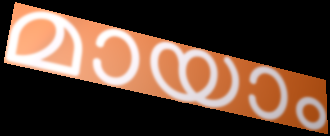
മായാം